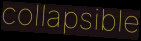
collapsible